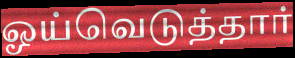
ஓய்வெடுத்தார்